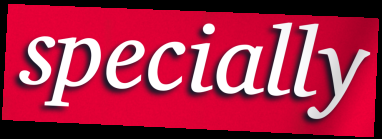
specially